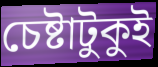
চেষ্টাটুকুই